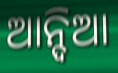
ଆନ୍ଦିଆ